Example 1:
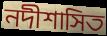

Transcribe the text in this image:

নদীশাসিত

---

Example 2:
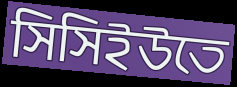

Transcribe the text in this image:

সিসিইউতে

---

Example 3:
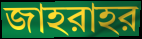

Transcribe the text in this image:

জাহরাহর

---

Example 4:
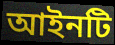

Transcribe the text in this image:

আইনটি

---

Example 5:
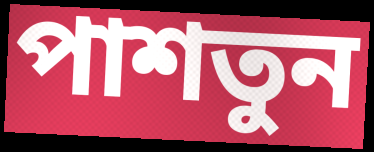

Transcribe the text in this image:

পাশতুন